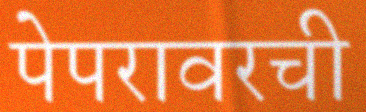
पेपरावरची